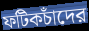
ফটিকচাঁদের